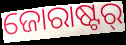
ଜୋରାଷ୍ଟର୍